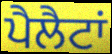
ਪੈਲੈਟਾਂ